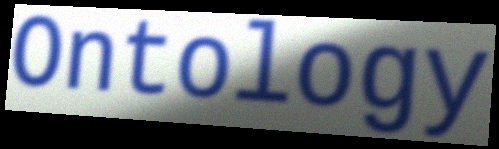
Ontology